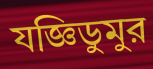
যজ্ঞিডুমুর